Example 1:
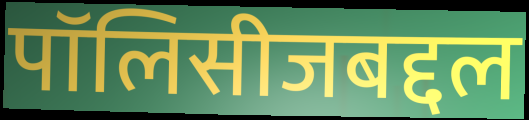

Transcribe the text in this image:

पॉलिसीजबद्दल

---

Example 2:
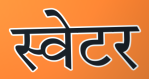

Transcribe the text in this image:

स्वेटर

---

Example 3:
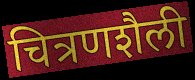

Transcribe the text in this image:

चित्रणशैली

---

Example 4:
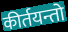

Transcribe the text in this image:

कीर्तयन्तो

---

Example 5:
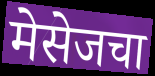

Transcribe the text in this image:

मेसेजचा